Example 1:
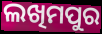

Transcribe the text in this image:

ଲଖିମପୁର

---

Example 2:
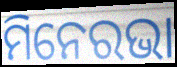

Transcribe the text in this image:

ମିନେରଭା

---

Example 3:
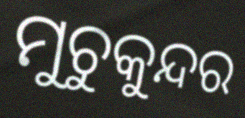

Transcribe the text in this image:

ମୁଚୁକୁନ୍ଦର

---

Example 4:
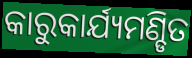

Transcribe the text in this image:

କାରୁକାର୍ଯ୍ୟମଣ୍ଡିତ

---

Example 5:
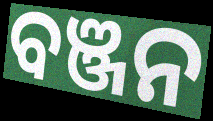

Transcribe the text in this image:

ବଞ୍ଜନ